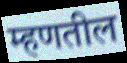
म्हणतील